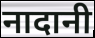
नादानी